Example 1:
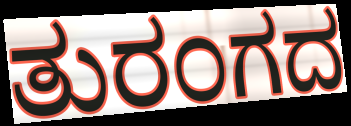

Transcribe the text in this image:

ತುರಂಗದ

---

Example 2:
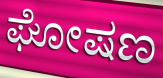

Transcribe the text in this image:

ಘೋಷಣ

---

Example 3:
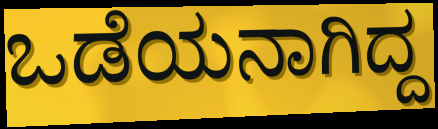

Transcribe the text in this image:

ಒಡೆಯನಾಗಿದ್ದ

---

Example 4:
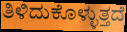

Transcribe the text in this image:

ತಿಳಿದುಕೊಳ್ಳುತ್ತದೆ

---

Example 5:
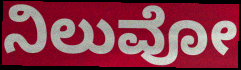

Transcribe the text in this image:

ನಿಲುವೋ